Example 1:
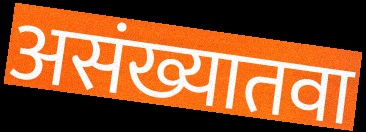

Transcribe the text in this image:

असंख्यातवा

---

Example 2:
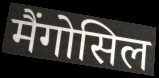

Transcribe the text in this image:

मैंगोसिल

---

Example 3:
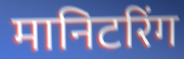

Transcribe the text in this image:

मानिटरिंग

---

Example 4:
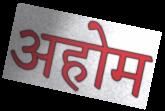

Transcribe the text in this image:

अहोम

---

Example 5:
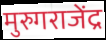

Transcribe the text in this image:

मुरुगराजेंद्र